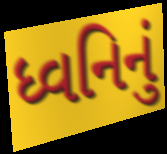
ધ્વનિનું